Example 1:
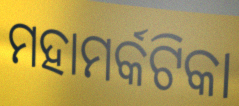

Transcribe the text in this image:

ମହାମର୍କଟିକା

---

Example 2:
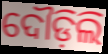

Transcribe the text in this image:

ଦୌଡ଼ିଲି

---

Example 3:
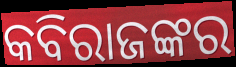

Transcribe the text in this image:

କବିରାଜଙ୍କର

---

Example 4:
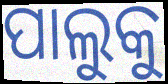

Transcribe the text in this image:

ପାଲୁକୁ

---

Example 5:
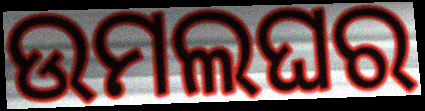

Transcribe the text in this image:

ଉମଲଘର